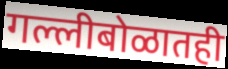
गल्लीबोळातही